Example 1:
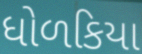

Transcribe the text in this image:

ધોળકિયા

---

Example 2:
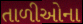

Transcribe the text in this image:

તાળીઓના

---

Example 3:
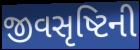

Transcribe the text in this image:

જીવસૃષ્ટિની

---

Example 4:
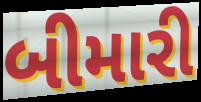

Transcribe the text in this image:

બીમારી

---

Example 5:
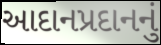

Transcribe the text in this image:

આદાનપ્રદાનનું